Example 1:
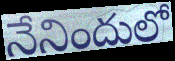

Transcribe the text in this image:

నేనిందులో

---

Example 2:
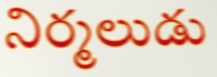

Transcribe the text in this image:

నిర్మలుడు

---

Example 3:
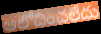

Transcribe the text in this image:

ఆలోచించలేదు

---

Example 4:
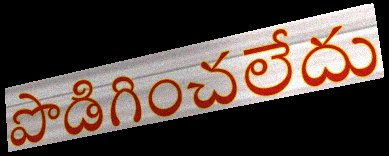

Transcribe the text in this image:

పొడిగించలేదు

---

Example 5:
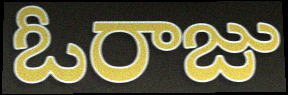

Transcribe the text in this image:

ఓరాజు